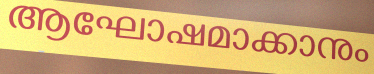
ആഘോഷമാക്കാനും